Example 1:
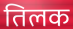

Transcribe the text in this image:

तिलक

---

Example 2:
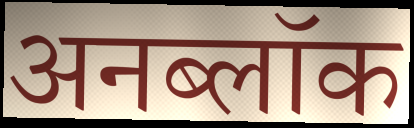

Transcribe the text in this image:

अनब्लॉक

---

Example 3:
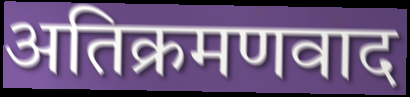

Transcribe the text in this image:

अतिक्रमणवाद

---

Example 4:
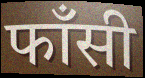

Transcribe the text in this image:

फाँसी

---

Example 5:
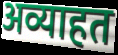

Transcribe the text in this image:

अव्याहत